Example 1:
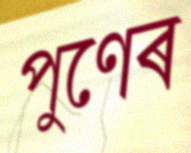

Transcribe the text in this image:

পুণেৰ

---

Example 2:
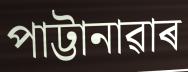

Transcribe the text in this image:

পাট্টানাৱাৰ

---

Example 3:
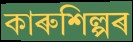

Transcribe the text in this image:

কাৰুশিল্পৰ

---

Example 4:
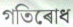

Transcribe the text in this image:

গতিৰোধ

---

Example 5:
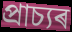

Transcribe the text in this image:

প্ৰাচ্যৰ